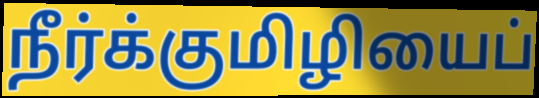
நீர்க்குமிழியைப்